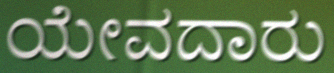
ಯೇವದಾರು